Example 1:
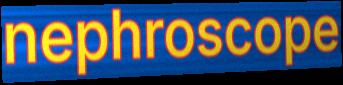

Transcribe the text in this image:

nephroscope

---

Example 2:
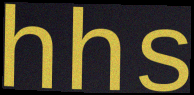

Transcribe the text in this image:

hhs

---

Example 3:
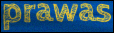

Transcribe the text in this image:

prawas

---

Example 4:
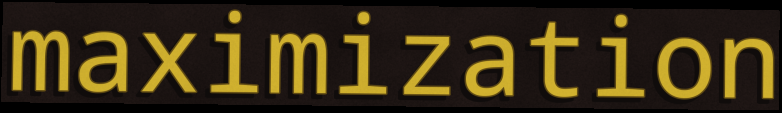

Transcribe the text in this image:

maximization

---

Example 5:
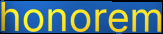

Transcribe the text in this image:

honorem